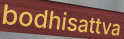
bodhisattva